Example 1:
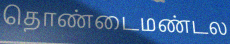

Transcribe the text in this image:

தொண்டைமண்டல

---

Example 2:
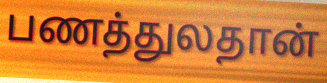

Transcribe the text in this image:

பணத்துலதான்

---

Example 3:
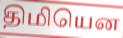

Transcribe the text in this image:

திமியென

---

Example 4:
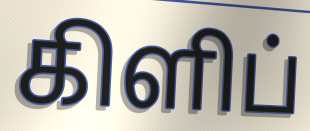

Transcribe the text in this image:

கிளிப்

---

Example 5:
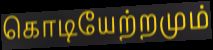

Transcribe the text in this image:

கொடியேற்றமும்